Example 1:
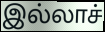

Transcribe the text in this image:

இல்லாச்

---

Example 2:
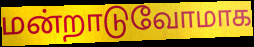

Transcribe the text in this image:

மன்றாடுவோமாக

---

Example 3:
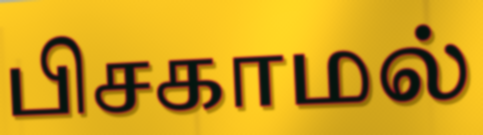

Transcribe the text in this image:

பிசகாமல்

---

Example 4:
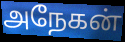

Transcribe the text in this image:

அநேகன்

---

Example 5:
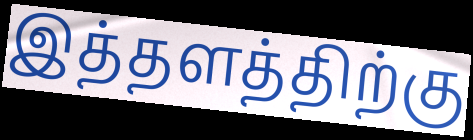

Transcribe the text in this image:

இத்தளத்திற்கு